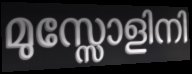
മുസ്സോളിനി